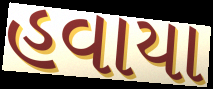
હવાયા